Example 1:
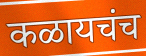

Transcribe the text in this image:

कळायचंच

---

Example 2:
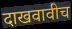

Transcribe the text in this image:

दाखवावीच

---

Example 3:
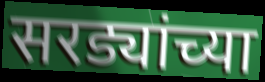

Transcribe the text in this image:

सरड्यांच्या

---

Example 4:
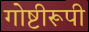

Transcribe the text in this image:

गोष्टीरूपी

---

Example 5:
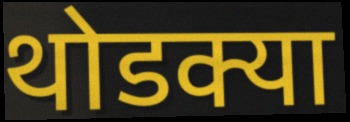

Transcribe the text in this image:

थोडक्या